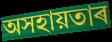
অসহায়তাৰ